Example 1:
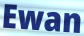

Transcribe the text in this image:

Ewan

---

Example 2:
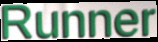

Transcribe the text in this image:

Runner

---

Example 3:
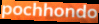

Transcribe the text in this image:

pochhondo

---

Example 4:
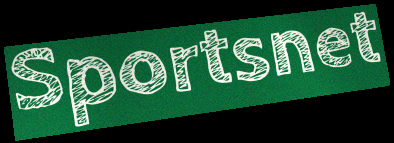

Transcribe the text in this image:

Sportsnet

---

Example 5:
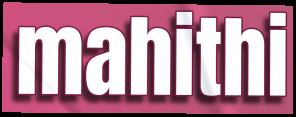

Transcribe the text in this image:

mahithi